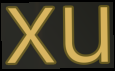
xu